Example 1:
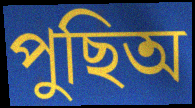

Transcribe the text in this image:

পুছিঅ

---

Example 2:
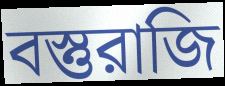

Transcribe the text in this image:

বস্তুরাজি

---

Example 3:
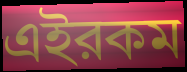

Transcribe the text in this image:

এইরকম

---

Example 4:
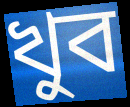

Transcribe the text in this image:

খুব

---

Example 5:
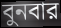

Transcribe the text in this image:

বুনবার